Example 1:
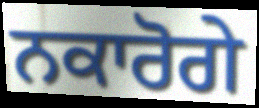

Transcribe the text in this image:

ਨਕਾਰੋਗੇ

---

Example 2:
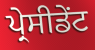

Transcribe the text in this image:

ਪ੍ਰੇਸੀਡੇਂਟ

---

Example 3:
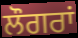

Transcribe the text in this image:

ਲੌਗਰਾਂ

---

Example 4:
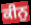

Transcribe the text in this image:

ਕੀਨੁ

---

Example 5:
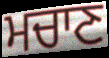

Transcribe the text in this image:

ਮਚਾਣ